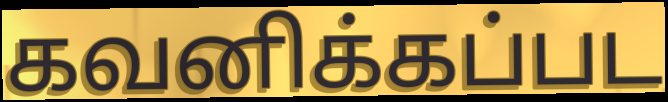
கவனிக்கப்பட